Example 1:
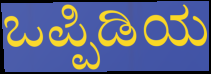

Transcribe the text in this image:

ಒಪ್ಪಿಡಿಯ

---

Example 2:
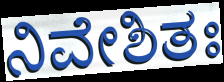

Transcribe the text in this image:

ನಿವೇಶಿತಃ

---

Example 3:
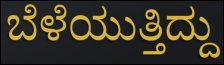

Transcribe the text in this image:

ಬೆಳೆಯುತ್ತಿದ್ದು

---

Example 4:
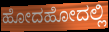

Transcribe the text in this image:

ಹೋದಹೋದಲ್ಲಿ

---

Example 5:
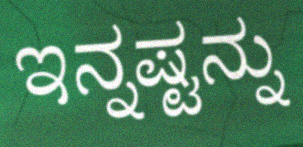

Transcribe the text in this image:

ಇನ್ನಷ್ಟನ್ನು